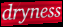
dryness